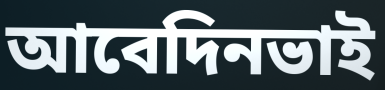
আবেদিনভাই